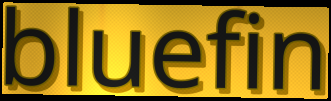
bluefin